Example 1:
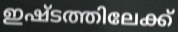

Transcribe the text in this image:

ഇഷ്ടത്തിലേക്ക്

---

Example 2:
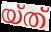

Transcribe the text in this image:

യ്ത്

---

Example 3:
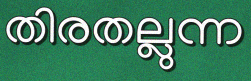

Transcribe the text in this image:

തിരതല്ലുന്ന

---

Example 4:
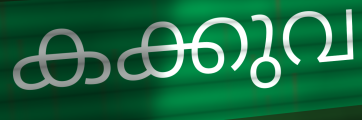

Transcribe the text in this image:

കക്കുവ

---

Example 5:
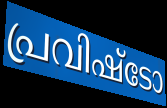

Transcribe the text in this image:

പ്രവിഷ്ടോ